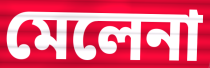
মেলেনা